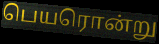
பெயரொன்று